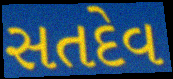
સતદેવ